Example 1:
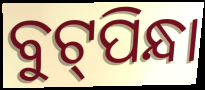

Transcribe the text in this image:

ବୁଟ୍‌ପିନ୍ଧା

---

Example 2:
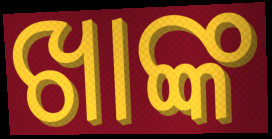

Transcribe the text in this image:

ଖାଙ୍କ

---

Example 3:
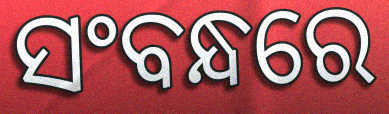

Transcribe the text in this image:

ସଂବନ୍ଧରେ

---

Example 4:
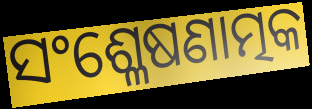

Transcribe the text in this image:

ସଂଶ୍ଳେଷଣାତ୍ମକ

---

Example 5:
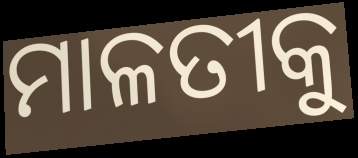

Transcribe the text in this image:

ମାଳତୀକୁ